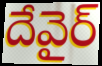
దేవైర్